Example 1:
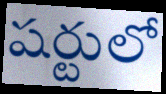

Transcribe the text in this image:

షర్టులో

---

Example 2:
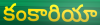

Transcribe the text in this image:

కంకారియా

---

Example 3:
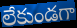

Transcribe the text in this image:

లేకుండగా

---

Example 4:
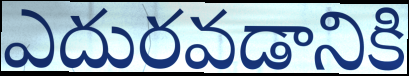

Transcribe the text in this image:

ఎదురవడానికి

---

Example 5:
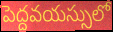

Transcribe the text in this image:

పెద్దవయస్సులో